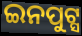
ଇନପୁଟ୍ସ